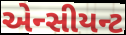
એન્સીયન્ટ